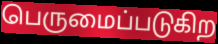
பெருமைப்படுகிற